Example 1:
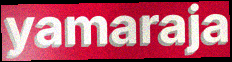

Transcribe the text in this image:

yamaraja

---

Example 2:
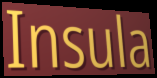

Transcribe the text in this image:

Insula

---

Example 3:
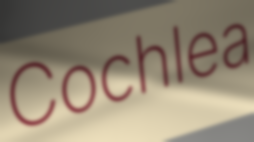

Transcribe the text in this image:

Cochlea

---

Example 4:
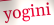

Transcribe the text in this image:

yogini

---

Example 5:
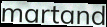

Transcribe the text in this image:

martand